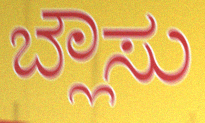
ಬ್ಲೌಸು